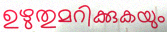
ഉഴുതുമറിക്കുകയും